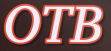
OTB